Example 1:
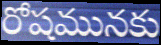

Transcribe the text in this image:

రోషమునకు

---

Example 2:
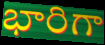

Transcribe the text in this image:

భారిగా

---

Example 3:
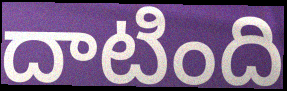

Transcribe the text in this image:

దాటింది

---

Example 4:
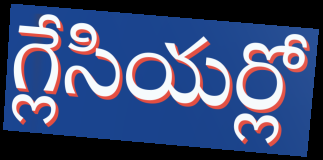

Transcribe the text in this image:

గ్లేసియర్లో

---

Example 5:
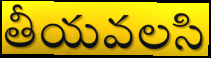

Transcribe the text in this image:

తీయవలసి